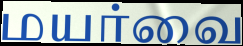
மயர்வை